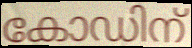
കോഡിന്